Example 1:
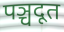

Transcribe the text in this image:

पञ्चदूत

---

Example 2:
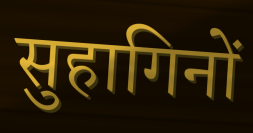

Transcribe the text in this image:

सुहागिनों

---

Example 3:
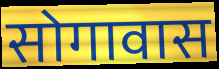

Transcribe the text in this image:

सोगावास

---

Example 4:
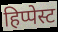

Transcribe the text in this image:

हिप्पेस्ट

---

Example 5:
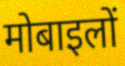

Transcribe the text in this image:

मोबाइलों